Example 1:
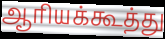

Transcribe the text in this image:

ஆரியக்கூத்து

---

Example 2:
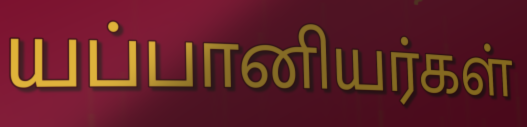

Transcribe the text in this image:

யப்பானியர்கள்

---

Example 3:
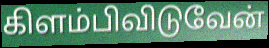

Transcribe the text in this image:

கிளம்பிவிடுவேன்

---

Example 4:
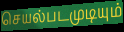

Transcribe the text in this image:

செயல்படமுடியும்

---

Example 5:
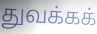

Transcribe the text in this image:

துவக்கக்